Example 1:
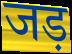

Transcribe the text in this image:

जड़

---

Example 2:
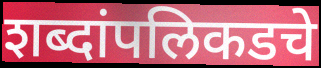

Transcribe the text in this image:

शब्दांपलिकडचे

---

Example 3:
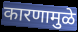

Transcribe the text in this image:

कारणामुळे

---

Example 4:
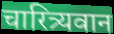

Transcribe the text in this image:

चारित्र्यवान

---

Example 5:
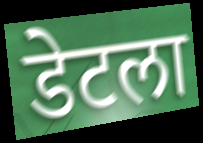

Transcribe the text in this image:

डेटला